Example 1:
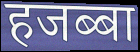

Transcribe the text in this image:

हजब्बा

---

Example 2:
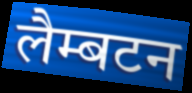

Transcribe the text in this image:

लैम्बटन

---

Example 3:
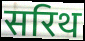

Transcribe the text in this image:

सरिथ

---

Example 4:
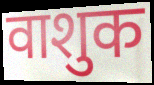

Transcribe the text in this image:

वाशुक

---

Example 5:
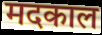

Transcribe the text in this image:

मदकाल